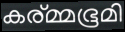
കര്മ്മഭൂമി